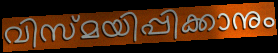
വിസ്മയിപ്പിക്കാനും